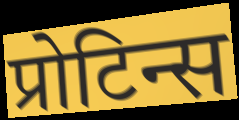
प्रोटिन्स